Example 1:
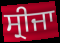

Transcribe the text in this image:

ਸ੍ਰੀਜਾ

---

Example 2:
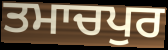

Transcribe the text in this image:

ਤਮਾਚਪੁਰ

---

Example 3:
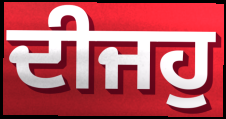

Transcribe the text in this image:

ਦੀਜਹੁ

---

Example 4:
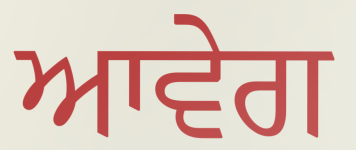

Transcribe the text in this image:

ਆਵੇਗ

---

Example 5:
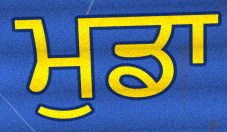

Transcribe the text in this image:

ਮੁਡਾ